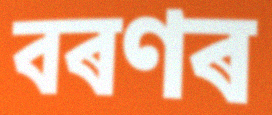
বৰণৰ